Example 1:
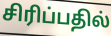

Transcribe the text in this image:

சிரிப்பதில்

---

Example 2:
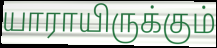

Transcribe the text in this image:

யாராயிருக்கும்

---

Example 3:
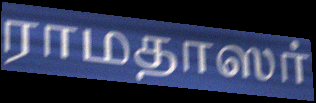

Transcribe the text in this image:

ராமதாஸர்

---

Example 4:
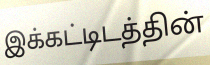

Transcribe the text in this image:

இக்கட்டிடத்தின்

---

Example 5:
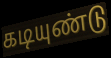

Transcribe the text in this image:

கடியுண்டு